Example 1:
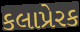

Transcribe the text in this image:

કલાપ્રેરક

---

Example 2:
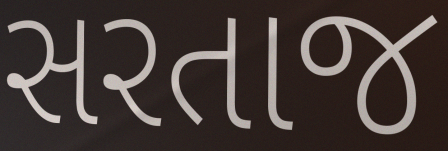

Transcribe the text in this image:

સરતાજ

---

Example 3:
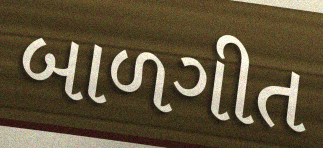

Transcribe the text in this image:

બાળગીત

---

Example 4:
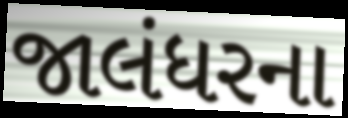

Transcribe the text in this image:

જાલંધરના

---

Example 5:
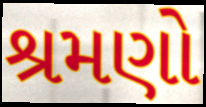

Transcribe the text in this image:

શ્રમણો